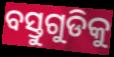
ବସ୍ତୁଗୁଡିକୁ